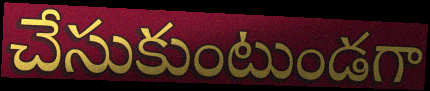
చేసుకుంటుండగా